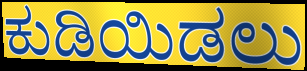
ಕುಡಿಯಿಡಲು